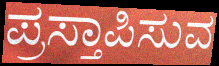
ಪ್ರಸ್ತಾಪಿಸುವ